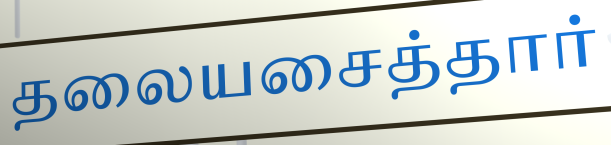
தலையசைத்தார்